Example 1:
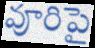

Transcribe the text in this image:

వూరిపై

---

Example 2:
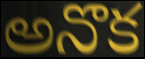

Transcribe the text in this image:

అనొక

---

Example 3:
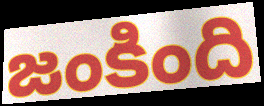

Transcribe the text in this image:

జంకింది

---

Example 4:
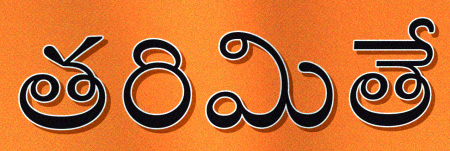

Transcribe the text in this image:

తరిమితే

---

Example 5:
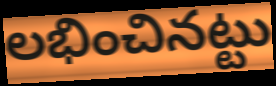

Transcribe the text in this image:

లభించినట్టు